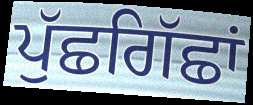
ਪੁੱਛਗਿੱਛਾਂ